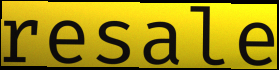
resale